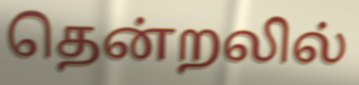
தென்றலில்